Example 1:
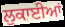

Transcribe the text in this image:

ਲੁਕਾਈਆਂ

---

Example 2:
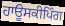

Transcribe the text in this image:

ਹਾਊਸਕੀਪਿੰਗ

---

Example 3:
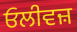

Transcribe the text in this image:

ਓਲੀਵਜ਼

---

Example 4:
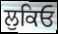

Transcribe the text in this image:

ਲੁਕਿਓ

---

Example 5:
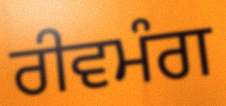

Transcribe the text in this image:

ਰੀਵਮੰਗ